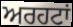
ਅਰਹਟਾਂ